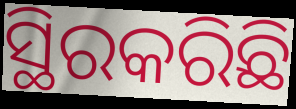
ସ୍ଥିରକରିଛି